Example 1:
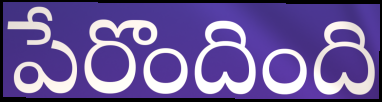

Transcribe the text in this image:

పేరొందింది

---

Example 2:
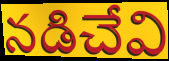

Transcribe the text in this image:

నడిచేవి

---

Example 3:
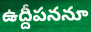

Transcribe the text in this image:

ఉద్దీపననూ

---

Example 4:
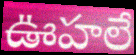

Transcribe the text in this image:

ఊహలే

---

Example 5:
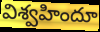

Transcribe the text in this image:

విశ్వహిందూ